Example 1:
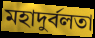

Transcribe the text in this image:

মহাদুর্বলতা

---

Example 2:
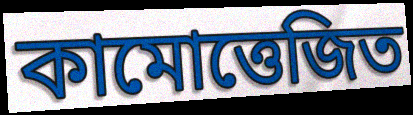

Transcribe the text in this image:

কামোত্তেজিত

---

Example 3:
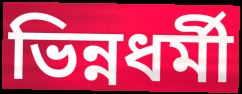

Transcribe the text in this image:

ভিন্নধর্মী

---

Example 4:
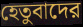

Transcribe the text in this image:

হেতুবাদের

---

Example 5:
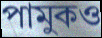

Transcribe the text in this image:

পামুকও